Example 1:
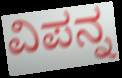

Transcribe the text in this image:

ವಿಪನ್ನ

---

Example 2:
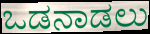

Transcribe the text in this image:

ಒಡನಾಡಲು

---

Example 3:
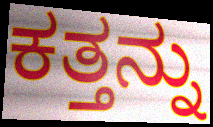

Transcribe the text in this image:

ಕತ್ತನ್ನು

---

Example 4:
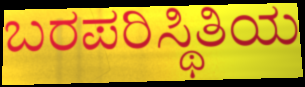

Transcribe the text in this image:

ಬರಪರಿಸ್ಥಿತಿಯ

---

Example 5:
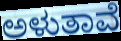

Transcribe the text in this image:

ಅಳುತಾವೆ